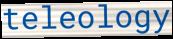
teleology